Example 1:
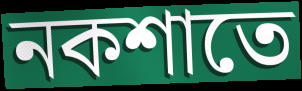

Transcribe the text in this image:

নকশাতে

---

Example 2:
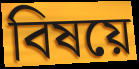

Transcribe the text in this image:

বিষয়ে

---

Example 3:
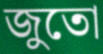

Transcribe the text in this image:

জুতো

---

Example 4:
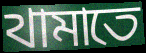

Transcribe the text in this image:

থামাতে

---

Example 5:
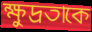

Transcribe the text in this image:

ক্ষুদ্রতাকে